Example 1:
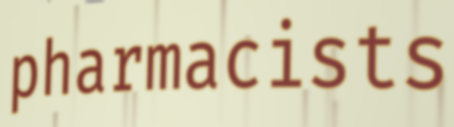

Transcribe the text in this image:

pharmacists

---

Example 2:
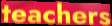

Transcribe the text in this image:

teachers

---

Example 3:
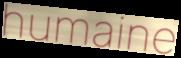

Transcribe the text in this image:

humaine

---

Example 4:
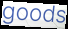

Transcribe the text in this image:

goods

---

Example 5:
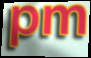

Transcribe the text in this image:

pm